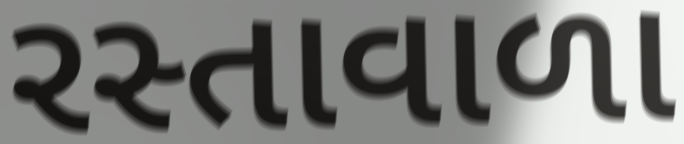
રસ્તાવાળા